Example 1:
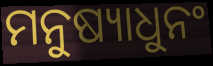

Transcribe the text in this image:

ମନୁଷ୍ୟାଧୁନଂ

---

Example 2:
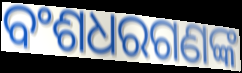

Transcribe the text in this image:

ବଂଶଧରଗଣଙ୍କ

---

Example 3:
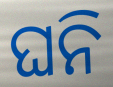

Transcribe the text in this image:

ଘନି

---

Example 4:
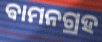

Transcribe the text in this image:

ଵାମନଗ୍ରହ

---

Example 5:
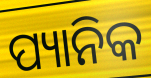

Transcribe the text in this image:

ପ୍ୟାନିକ